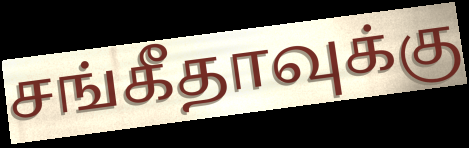
சங்கீதாவுக்கு